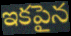
ఇకపైన